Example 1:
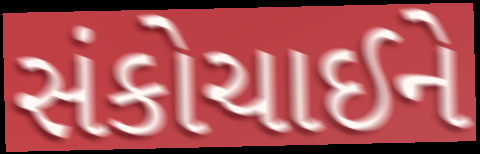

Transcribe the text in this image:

સંકોચાઈને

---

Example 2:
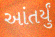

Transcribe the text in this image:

આંતર્યું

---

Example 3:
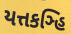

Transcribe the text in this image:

યત્તકઞ્હિ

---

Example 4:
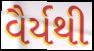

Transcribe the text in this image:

વૈર્યથી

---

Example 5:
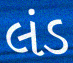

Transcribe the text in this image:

લંડ